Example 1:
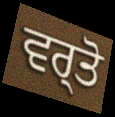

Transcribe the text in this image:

ਵਰ੍ਤੋ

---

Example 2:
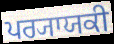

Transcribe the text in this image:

ਪਰ੍ਯਾਯਕੀ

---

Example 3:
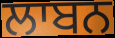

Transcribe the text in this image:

ਲਾਬਨ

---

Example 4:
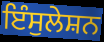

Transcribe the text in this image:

ਇੰਸੁਲੇਸ਼ਨ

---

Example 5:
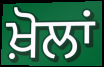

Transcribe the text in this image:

ਖ਼ੋਲਾਂ